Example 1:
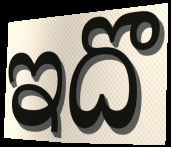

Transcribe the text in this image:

ఇదొ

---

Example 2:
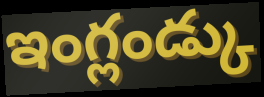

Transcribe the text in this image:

ఇంగ్లండ్కు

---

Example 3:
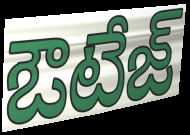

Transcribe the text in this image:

ఔటేజ్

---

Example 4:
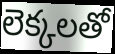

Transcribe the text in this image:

లెక్కలతో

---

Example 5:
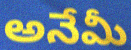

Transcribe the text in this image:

అనేమీ